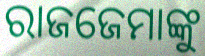
ରାଜଜେମାଙ୍କୁ